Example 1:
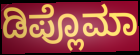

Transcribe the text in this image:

ಡಿಪ್ಲೊಮಾ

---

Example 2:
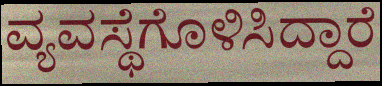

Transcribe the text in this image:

ವ್ಯವಸ್ಥೆಗೊಳಿಸಿದ್ದಾರೆ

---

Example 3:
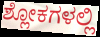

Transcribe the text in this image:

ಶ್ಲೋಕಗಳಲ್ಲಿ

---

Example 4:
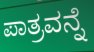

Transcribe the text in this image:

ಪಾತ್ರವನ್ನೆ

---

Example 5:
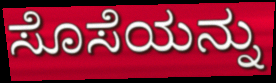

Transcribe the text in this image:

ಸೊಸೆಯನ್ನು